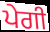
ਪੇਗੀ